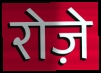
रोज़े